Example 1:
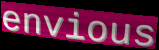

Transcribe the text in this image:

envious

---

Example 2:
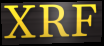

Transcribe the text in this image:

XRF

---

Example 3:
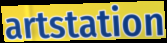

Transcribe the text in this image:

artstation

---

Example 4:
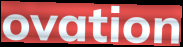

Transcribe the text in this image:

ovation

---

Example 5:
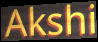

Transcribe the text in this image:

Akshi